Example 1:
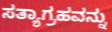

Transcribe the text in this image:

ಸತ್ಯಾಗ್ರಹವನ್ನು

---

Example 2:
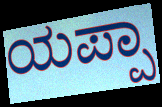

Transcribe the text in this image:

ಯಪ್ಪಾ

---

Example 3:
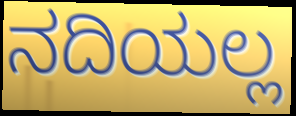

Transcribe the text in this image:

ನದಿಯಲ್ಲ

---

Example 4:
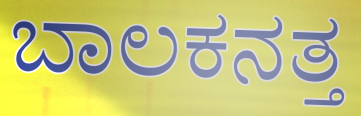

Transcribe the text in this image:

ಬಾಲಕನತ್ತ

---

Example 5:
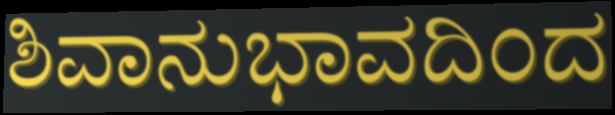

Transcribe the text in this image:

ಶಿವಾನುಭಾವದಿಂದ